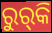
ରୁର୍‍କି